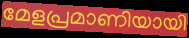
മേളപ്രമാണിയായി